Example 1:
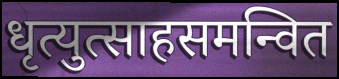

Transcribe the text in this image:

धृत्युत्साहसमन्वित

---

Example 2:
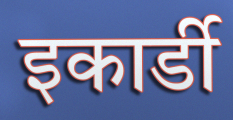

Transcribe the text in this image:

इकार्डी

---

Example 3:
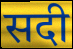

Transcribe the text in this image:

सदी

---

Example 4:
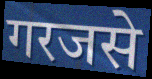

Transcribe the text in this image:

गरजसे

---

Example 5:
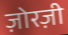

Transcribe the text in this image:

ज़ोरज़ी